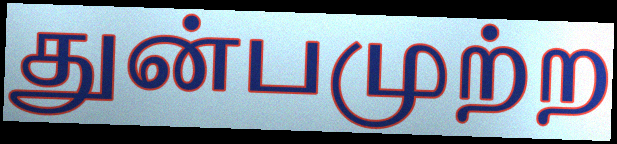
துன்பமுற்ற